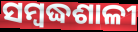
ସମ୍ବଦ୍ଧଶାଳୀ